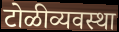
टोळीव्यवस्था